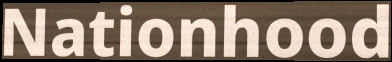
Nationhood